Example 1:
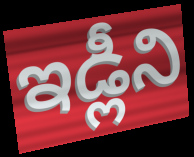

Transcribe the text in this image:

ఇడ్లీని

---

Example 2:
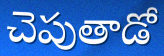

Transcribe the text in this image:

చెపుతాడో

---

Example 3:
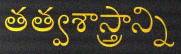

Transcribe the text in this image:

తత్వశాస్త్రాన్ని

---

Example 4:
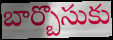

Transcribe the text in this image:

బార్బొసుకు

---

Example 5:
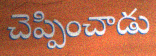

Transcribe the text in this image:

చెప్పించాడు